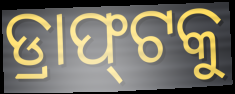
ଡ୍ରାଫ୍‌ଟକୁ